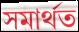
সমাৰ্থত